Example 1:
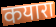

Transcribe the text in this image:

कयारा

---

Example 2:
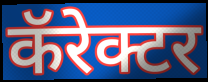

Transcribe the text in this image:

कॅरेक्टर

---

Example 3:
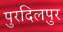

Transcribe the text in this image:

पुरदिलपुर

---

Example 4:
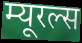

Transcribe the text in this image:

म्यूरल्स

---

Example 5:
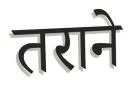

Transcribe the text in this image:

तराने